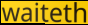
waiteth